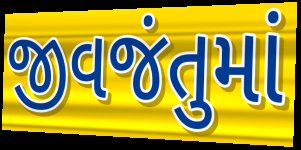
જીવજંતુમાં